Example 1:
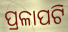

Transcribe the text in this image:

ପ୍ରଳାପଟି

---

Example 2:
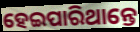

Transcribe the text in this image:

ହେଇପାରିଥାନ୍ତେ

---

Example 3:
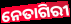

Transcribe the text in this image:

ନେତାଗିରୀ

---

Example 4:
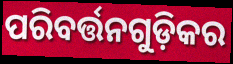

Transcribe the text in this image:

ପରିବର୍ତ୍ତନଗୁଡ଼ିକର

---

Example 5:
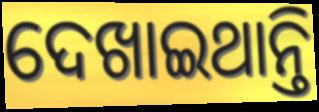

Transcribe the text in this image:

ଦେଖାଇଥାନ୍ତି